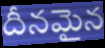
దీనమైన